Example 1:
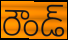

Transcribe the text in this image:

రౌండ్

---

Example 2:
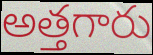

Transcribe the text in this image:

అత్తగారు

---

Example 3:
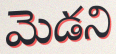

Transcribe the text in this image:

మెడని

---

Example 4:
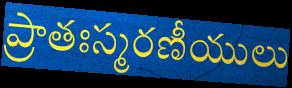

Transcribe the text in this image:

ప్రాతఃస్మరణీయులు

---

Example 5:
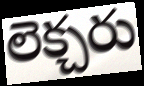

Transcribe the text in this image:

లెక్చరు